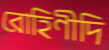
রোহিণীদি